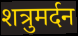
शत्रुमर्दन